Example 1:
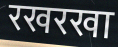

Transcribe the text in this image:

रखरखा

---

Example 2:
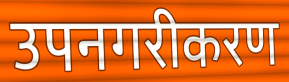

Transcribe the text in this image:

उपनगरीकरण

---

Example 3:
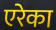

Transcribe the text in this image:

एरेका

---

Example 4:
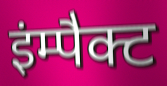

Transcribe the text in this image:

इंम्पैक्ट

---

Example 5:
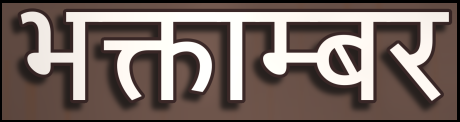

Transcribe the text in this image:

भक्ताम्बर